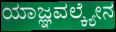
ಯಾಜ್ಞವಲ್ಕ್ಯೇನ